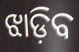
ଝାଡ଼ିବ